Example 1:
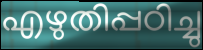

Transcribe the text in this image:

എഴുതിപ്പഠിച്ചു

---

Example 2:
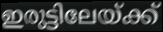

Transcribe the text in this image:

ഇരുട്ടിലേയ്ക്ക്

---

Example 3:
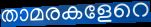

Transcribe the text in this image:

താമരകളേറെ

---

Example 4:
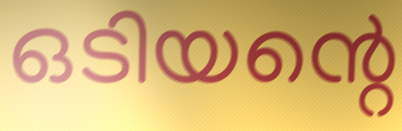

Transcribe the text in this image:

ഒടിയന്റെ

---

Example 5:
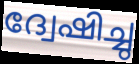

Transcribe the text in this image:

ദ്വേഷിച്ചു